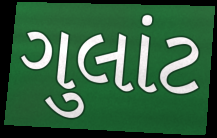
ગુલાંટ